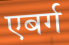
एबर्ग